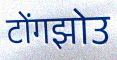
टोंगझोउ